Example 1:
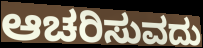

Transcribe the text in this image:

ಆಚರಿಸುವದು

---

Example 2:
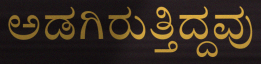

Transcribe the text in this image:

ಅಡಗಿರುತ್ತಿದ್ದವು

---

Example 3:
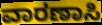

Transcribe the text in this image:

ವಾರಣಾಸಿ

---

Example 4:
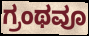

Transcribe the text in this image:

ಗ್ರಂಥವೂ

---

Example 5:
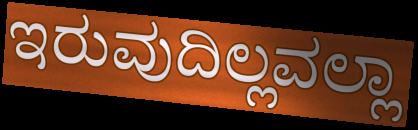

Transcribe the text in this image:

ಇರುವುದಿಲ್ಲವಲ್ಲಾ